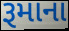
રૂમાના